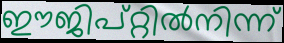
ഈജിപ്റ്റിൽനിന്ന്